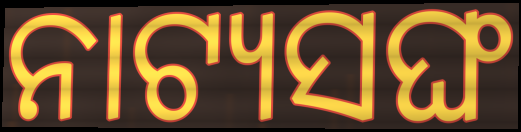
ନାଟ୍ୟସଙ୍ଘ